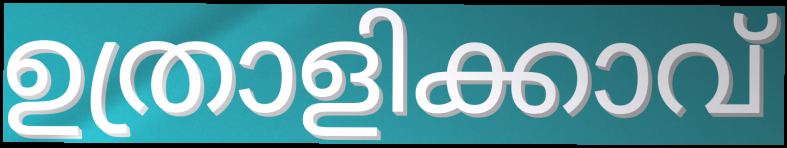
ഉത്രാളിക്കാവ്